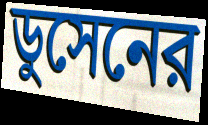
ডুসেনের